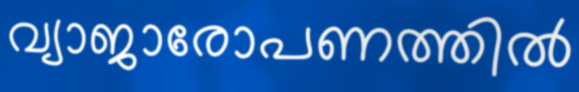
വ്യാജാരോപണത്തിൽ